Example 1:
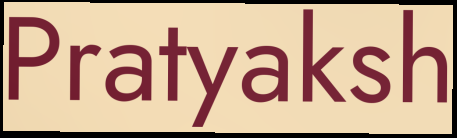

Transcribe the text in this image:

Pratyaksh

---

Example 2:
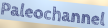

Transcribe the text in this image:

Paleochannel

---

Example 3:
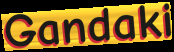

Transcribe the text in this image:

Gandaki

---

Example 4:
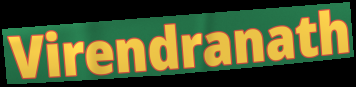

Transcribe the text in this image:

Virendranath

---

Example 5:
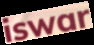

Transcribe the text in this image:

iswar